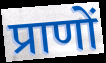
प्राणों